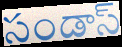
సండాస్